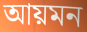
আয়মন